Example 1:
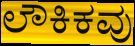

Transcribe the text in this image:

ಲೌಕಿಕವು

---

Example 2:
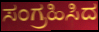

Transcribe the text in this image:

ಸಂಗ್ರಹಿಸಿದ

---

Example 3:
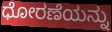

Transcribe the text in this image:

ಧೋರಣೆಯನ್ನು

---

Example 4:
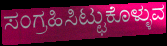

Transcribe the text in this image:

ಸಂಗ್ರಹಿಸಿಟ್ಟುಕೊಳ್ಳುವ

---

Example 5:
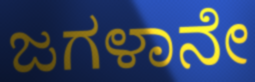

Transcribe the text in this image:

ಜಗಳಾನೇ